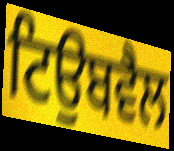
ਟਿਉਬਵੈਲ